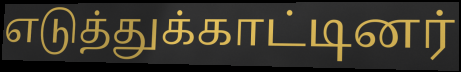
எடுத்துக்காட்டினர்